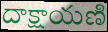
దాక్షాయణి